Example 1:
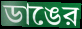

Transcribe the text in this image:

ডাঙের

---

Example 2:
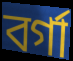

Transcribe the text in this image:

বর্গা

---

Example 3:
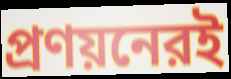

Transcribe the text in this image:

প্রণয়নেরই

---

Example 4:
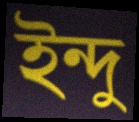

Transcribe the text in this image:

ইন্দু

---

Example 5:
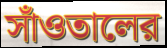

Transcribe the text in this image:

সাঁওতালের